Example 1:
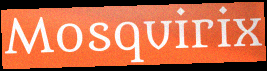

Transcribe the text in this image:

Mosquirix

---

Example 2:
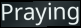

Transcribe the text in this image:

Praying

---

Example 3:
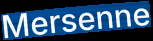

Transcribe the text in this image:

Mersenne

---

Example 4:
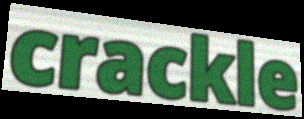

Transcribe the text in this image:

crackle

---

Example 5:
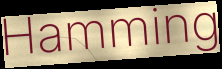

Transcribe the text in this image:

Hamming